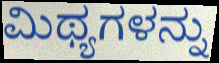
ಮಿಥ್ಯಗಳನ್ನು